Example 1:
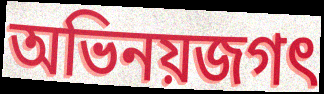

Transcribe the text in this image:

অভিনয়জগৎ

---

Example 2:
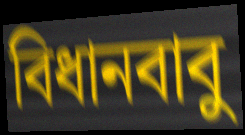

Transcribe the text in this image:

বিধানবাবু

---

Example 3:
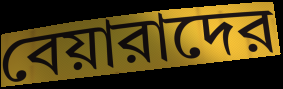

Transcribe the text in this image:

বেয়ারাদের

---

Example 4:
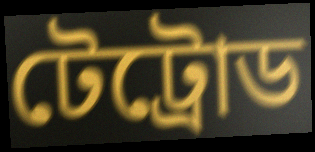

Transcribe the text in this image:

টেট্রোড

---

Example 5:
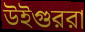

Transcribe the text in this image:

উইগুররা